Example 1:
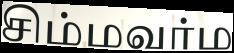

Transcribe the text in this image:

சிம்மவர்ம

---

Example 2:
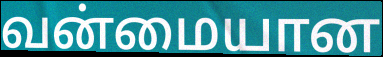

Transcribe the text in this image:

வன்மையான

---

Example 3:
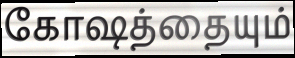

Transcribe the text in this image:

கோஷத்தையும்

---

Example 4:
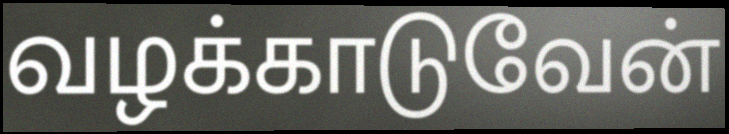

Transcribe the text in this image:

வழக்காடுவேன்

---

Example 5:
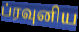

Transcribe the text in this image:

ப்ரவுனிய